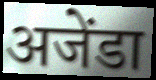
अजेंडा